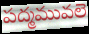
పద్మమువలె